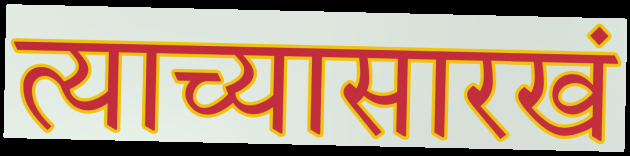
त्याच्यासारखं